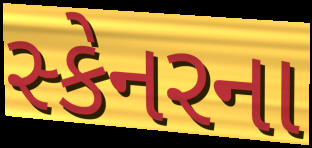
સ્કેનરના